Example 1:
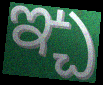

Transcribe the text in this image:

ఞ్చ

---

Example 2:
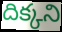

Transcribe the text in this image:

దిక్కని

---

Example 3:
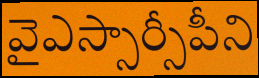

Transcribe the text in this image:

వైఎస్సార్సీపీని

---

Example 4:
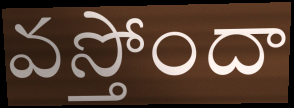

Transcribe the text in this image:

వస్తోందా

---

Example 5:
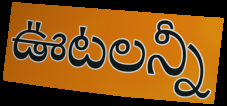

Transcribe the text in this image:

ఊటలన్నీ